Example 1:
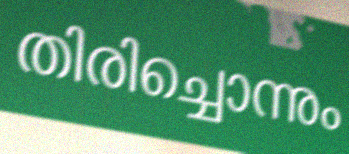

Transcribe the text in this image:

തിരിച്ചൊന്നും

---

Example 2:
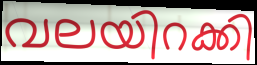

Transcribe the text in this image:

വലയിറക്കി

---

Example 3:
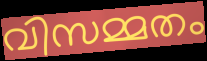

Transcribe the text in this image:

വിസമ്മതം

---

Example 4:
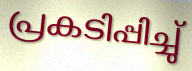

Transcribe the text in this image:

പ്രകടിപ്പിച്ചു്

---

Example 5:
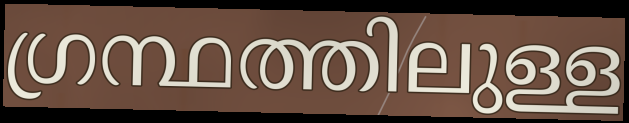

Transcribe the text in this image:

ഗ്രന്ഥത്തിലുള്ള